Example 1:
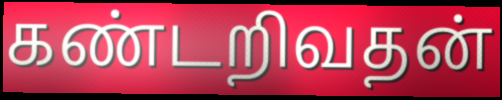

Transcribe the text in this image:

கண்டறிவதன்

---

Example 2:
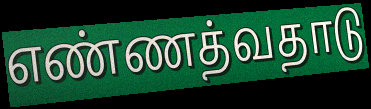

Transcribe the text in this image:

எண்ணத்வதாடு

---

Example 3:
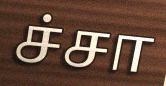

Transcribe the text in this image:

ச்சா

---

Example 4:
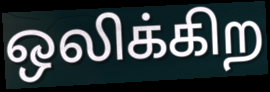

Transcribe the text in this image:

ஒலிக்கிற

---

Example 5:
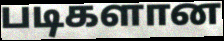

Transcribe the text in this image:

படிகளான